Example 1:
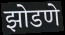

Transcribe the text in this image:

झोडणे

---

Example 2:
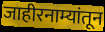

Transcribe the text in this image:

जाहीरनाम्यांतून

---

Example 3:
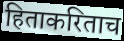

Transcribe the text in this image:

हिताकरिताच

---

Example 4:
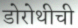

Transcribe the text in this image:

डोरोथीची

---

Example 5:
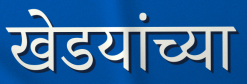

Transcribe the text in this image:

खेडयांच्या